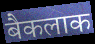
बैकलाक